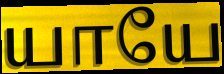
யாயே